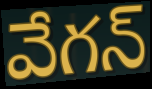
వేగన్